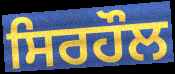
ਸਿਰਹੌਲ